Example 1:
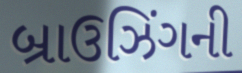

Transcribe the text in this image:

બ્રાઉઝિંગની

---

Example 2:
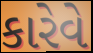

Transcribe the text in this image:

કારેવે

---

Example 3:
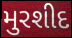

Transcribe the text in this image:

મુરશીદ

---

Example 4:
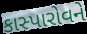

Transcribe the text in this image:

કાસ્પારોવને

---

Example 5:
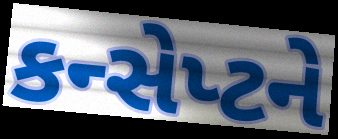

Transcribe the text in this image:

કન્સેપ્ટને